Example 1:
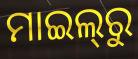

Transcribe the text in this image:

ମାଇଲ୍‌ରୁ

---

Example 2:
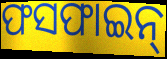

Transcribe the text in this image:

ଫସଫାଇନ୍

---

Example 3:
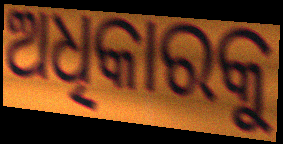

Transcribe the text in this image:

ଅଧିକାରକୁ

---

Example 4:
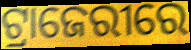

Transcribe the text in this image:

ଟ୍ରାଜେରୀରେ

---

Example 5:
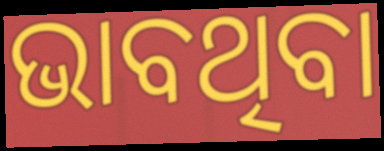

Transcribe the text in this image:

ଭାବଥିବା